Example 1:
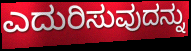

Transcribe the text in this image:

ಎದುರಿಸುವುದನ್ನು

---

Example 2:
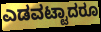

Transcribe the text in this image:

ಎಡವಟ್ಟಾದರೂ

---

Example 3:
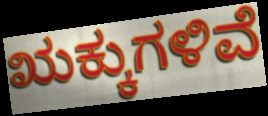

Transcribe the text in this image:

ಋಕ್ಕುಗಳಿವೆ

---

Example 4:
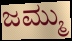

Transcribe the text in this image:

ಜಮ್ಮು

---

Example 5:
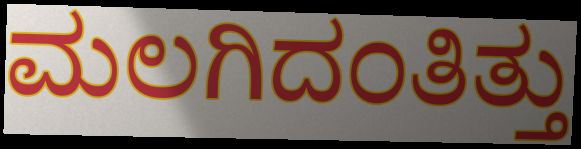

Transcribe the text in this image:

ಮಲಗಿದಂತಿತ್ತು